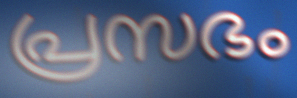
പ്രസഭം